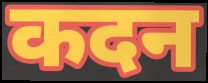
कदन